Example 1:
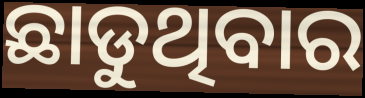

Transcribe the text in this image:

ଛାଡୁଥିବାର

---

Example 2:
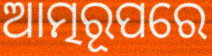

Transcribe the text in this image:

ଆତ୍ମରୂପରେ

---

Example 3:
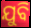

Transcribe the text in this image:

ଯୁବି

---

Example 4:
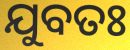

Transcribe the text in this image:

ଯୁବତଃ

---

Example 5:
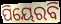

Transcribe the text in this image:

ପିୟେରବି